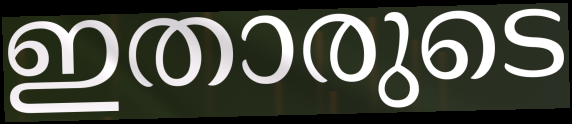
ഇതാരുടെ